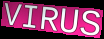
VIRUS